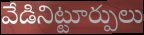
వేడినిట్టూర్పులు